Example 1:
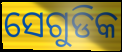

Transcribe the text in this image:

ସେଗୁଡିକ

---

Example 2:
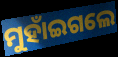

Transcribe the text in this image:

ମୁହାଁଇଗଲେ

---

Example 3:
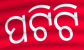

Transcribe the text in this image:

ପଟିଟି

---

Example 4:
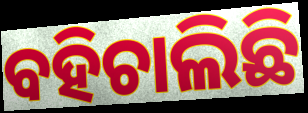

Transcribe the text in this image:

ବହିଚାଲିଛି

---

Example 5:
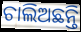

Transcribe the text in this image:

ଚାଲିଅଛନ୍ତି